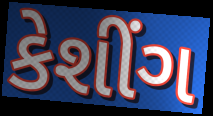
કેશીંગ